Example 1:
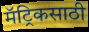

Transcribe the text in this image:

मॅट्रिकसाठी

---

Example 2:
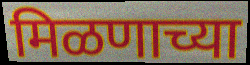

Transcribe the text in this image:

मिळणाच्या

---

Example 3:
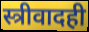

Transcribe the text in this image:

स्त्रीवादही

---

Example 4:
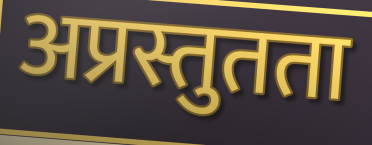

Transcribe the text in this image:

अप्रस्तुतता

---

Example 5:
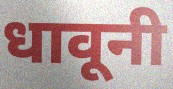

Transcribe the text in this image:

धावूनी